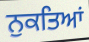
ਨੁਕਤਿਆਂ